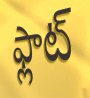
ఫ్లాట్